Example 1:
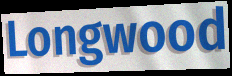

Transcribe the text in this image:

Longwood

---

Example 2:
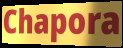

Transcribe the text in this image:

Chapora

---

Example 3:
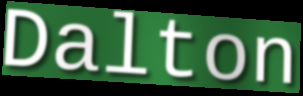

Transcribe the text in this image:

Dalton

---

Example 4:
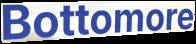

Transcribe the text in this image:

Bottomore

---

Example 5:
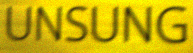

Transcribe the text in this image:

UNSUNG